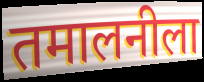
तमालनीला